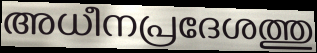
അധീനപ്രദേശത്തു